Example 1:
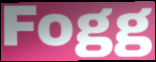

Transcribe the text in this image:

Fogg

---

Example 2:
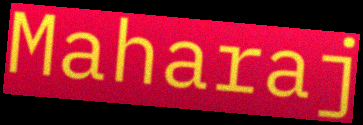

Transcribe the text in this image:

Maharaj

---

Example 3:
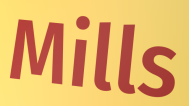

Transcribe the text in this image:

Mills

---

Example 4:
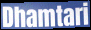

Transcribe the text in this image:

Dhamtari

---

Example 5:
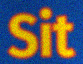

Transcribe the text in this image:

Sit